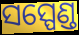
ସସ୍ପେଣ୍ଡ